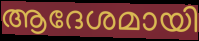
ആദേശമായി